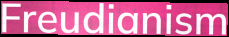
Freudianism